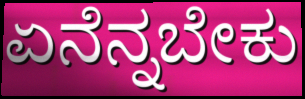
ಏನೆನ್ನಬೇಕು